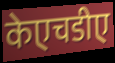
केएचडीए